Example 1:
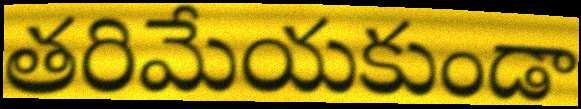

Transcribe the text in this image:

తరిమేయకుండా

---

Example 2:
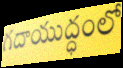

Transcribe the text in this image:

గదాయుద్ధంలో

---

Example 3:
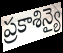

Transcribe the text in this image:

ప్రకాశిన్యై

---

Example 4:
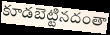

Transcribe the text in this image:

కూడబెట్టినదంతా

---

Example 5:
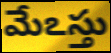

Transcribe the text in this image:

మేఽస్తు